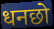
धनछो